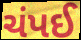
ચંપઈ